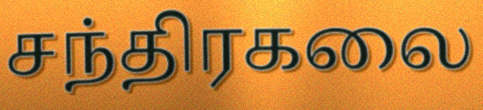
சந்திரகலை